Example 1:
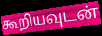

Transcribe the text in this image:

கூறியவுடன்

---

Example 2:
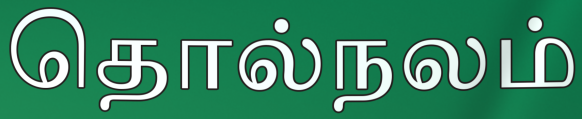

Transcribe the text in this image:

தொல்நலம்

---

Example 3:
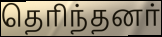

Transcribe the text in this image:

தெரிந்தனர்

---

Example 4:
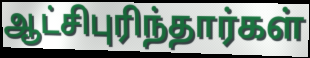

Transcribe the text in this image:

ஆட்சிபுரிந்தார்கள்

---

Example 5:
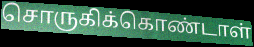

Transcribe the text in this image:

சொருகிக்கொண்டாள்